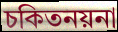
চকিতনয়না